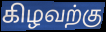
கிழவற்கு